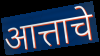
आत्ताचे